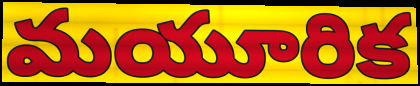
మయూరిక